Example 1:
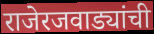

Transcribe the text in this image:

राजेरजवाड्यांची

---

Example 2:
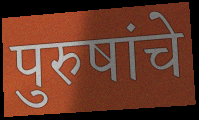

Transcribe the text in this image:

पुरुषांचे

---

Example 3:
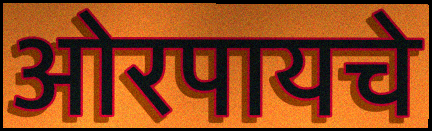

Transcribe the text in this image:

ओरपायचे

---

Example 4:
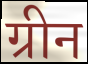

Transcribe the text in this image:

ग्रीन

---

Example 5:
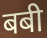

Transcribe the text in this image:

बबी